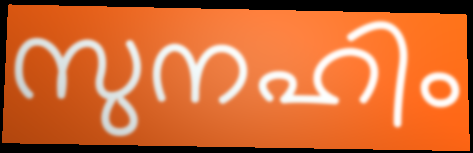
സുനഹിം